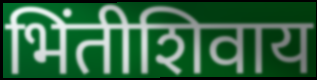
भिंतीशिवाय